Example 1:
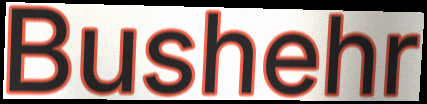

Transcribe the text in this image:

Bushehr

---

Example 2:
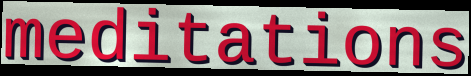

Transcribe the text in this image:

meditations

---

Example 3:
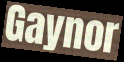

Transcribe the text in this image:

Gaynor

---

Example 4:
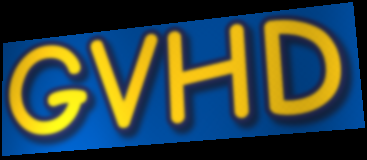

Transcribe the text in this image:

GVHD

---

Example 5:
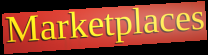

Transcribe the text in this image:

Marketplaces